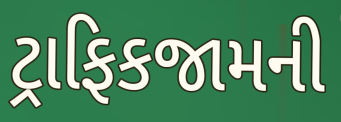
ટ્રાફિકજામની